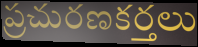
ప్రచురణకర్తలు